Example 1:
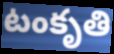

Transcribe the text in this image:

టంకృతి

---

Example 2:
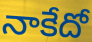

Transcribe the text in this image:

నాకేదో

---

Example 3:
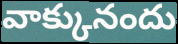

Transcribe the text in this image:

వాక్కునందు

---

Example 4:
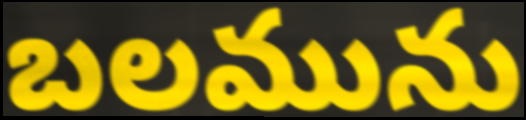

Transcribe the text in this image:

బలమును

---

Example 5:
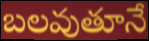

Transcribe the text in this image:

బలవుతూనే